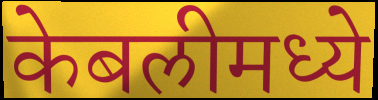
केबलीमध्ये